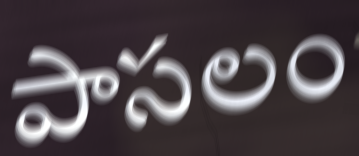
పాసలం